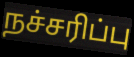
நச்சரிப்பு